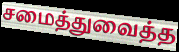
சமைத்துவைத்த